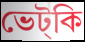
ভেট্কি